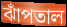
ঝাঁপতাল